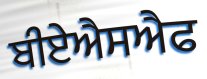
ਬੀਏਐਸਐਫ